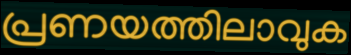
പ്രണയത്തിലാവുക